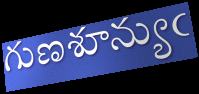
గుణశూన్యుఁ